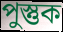
পুস্তুক